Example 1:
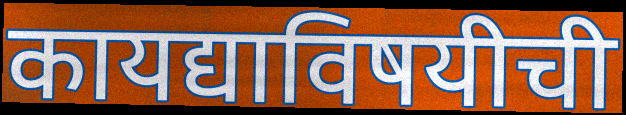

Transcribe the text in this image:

कायद्याविषयीची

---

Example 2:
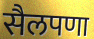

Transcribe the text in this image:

सैलपणा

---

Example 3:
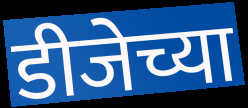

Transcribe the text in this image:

डीजेच्या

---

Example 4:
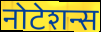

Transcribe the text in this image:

नोटेशन्स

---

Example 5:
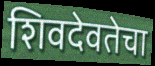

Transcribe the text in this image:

शिवदेवतेचा